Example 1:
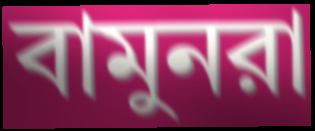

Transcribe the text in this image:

বামুনরা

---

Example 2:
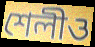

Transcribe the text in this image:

শেলীও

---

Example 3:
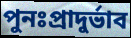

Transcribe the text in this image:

পুনঃপ্রাদুর্ভাব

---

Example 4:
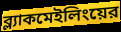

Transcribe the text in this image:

ব্ল্যাকমেইলিংয়ের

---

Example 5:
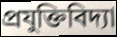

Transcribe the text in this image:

প্রযুক্তিবিদ্যা